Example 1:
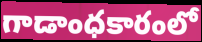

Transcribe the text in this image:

గాడాంధకారంలో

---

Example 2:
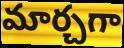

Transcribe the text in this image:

మార్చగా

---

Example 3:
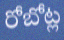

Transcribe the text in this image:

రోబోట్ల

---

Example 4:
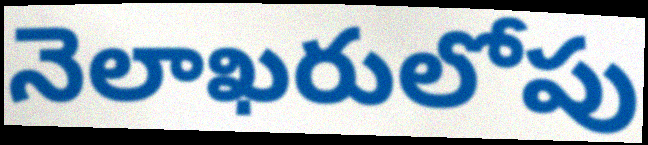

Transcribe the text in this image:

నెలాఖరులోపు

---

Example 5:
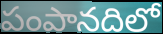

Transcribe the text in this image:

పంపానదిలో